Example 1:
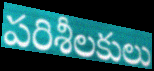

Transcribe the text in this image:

పరిశీలకులు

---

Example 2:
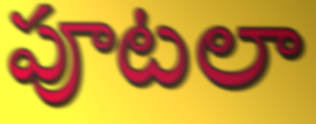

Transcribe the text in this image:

పూటలా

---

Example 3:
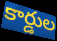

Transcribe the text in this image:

కార్డుల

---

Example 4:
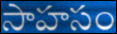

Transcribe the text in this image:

సాహసం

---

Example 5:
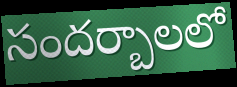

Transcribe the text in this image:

సందర్బాలలో